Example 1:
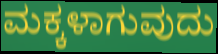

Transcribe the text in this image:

ಮಕ್ಕಳಾಗುವುದು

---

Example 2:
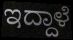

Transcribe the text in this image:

ಇದ್ದಾಳೆ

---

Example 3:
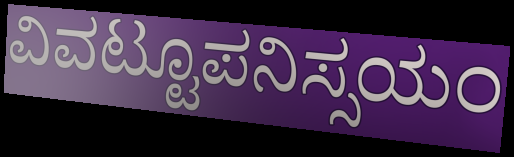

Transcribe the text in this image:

ವಿವಟ್ಟೂಪನಿಸ್ಸಯಂ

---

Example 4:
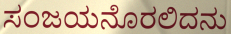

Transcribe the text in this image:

ಸಂಜಯನೊರಲಿದನು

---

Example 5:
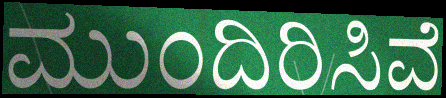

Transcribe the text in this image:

ಮುಂದಿರಿಸಿವೆ